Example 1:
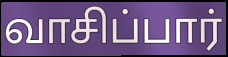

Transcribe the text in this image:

வாசிப்பார்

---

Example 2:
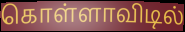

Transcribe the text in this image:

கொள்ளாவிடில்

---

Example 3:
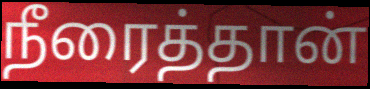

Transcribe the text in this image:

நீரைத்தான்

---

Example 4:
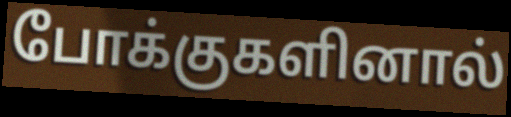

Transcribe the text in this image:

போக்குகளினால்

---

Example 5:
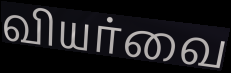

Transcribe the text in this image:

வியர்வை